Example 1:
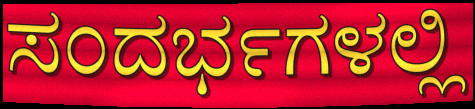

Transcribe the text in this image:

ಸಂದರ್ಭಗಳಲ್ಲಿ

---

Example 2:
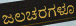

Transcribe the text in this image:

ಜಲಚರಗಳೂ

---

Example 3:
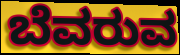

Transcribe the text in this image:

ಬೆವರುವ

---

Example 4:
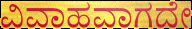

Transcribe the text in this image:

ವಿವಾಹವಾಗದೇ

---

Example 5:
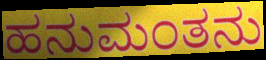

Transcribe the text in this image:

ಹನುಮಂತನು